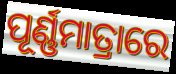
ପୂର୍ଣ୍ଣମାତ୍ରାରେ